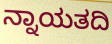
ನ್ನಾಯತದಿ